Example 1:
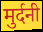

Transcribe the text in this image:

मुर्दनी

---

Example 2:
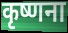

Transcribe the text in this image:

कृष्णना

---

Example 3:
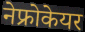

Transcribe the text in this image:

नेफ्रोकेयर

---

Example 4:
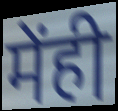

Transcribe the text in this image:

मेंही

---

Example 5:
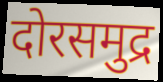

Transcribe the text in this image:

दोरसमुद्र